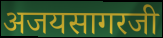
अजयसागरजी